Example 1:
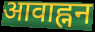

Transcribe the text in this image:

आवाह्नन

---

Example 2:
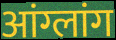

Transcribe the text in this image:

आंग्लांग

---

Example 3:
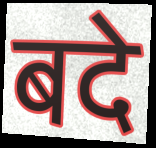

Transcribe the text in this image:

बदे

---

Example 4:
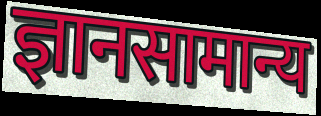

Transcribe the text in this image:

ज्ञानसामान्य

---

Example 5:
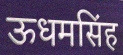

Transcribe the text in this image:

ऊधमसिंह